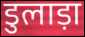
डुलाड़ा